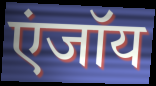
एंजॉय